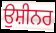
ਉਸ਼ੀਨਰ